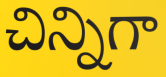
చిన్నిగా